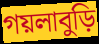
গয়লাবুড়ি